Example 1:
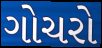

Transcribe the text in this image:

ગોચરો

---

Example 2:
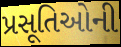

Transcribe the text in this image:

પ્રસૂતિઓની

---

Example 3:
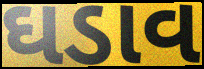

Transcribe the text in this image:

ઘડાવ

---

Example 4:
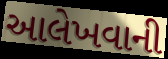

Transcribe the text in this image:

આલેખવાની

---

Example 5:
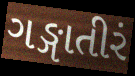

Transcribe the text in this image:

ગઙ્ગાતીરં